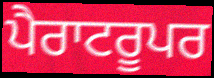
ਪੈਰਾਟਰੂਪਰ